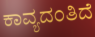
ಕಾವ್ಯದಂತಿದೆ